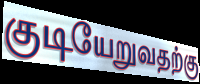
குடியேறுவதற்கு